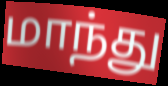
மாந்து